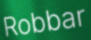
Robbar